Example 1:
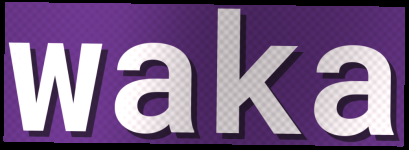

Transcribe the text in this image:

waka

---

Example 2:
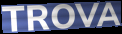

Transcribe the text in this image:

TROVA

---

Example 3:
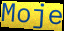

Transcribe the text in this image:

Moje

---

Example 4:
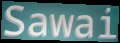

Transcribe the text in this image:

Sawai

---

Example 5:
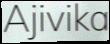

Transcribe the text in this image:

Ajivika